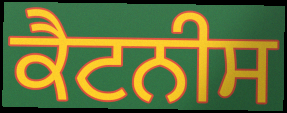
ਕੈਟਨੀਸ